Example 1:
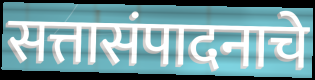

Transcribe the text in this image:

सत्तासंपादनाचे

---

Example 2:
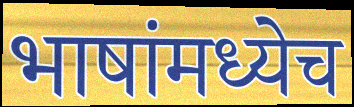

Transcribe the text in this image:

भाषांमध्येच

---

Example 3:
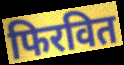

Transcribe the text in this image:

फिरवित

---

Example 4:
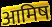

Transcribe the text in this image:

आमिष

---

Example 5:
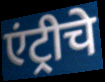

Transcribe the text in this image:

एंट्रीचे